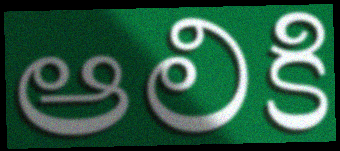
ఆలికి